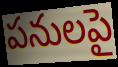
పనులపై